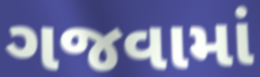
ગજવામાં